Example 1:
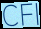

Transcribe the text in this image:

CFI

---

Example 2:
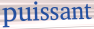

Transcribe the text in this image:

puissant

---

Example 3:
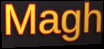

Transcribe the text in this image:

Magh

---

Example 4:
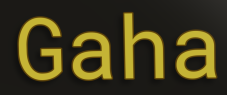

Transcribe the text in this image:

Gaha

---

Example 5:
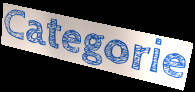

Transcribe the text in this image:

Categorie